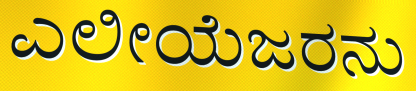
ಎಲೀಯೆಜರನು